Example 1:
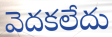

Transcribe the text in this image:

వెదకలేదు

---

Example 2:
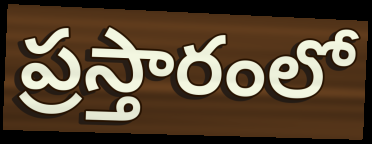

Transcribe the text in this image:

ప్రస్తారంలో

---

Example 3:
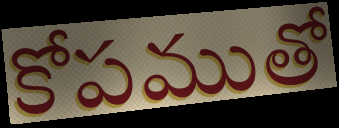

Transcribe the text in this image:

కోపముతో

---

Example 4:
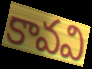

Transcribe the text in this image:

కావవి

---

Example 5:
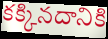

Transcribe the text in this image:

కక్కినదానికి